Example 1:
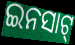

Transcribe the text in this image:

ଇନସାଟ୍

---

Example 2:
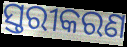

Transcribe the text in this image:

ସ୍ତରୀକରଣ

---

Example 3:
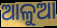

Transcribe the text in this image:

ଆଳୁଆ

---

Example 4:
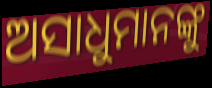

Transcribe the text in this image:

ଅସାଧୁମାନଙ୍କୁ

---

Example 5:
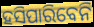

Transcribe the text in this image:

ହସିପାରିବେନି